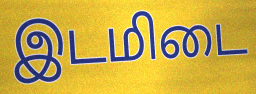
இடமிடை